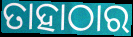
ତାହାଠାର